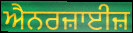
ਐਨਰਜ਼ਾਈਜ਼